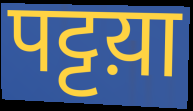
पट्टय़ा